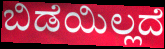
ಬಿಡೆಯಿಲ್ಲದೆ